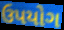
ઉપયોગ